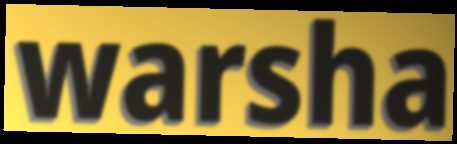
warsha